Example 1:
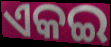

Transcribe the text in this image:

ଏକଇ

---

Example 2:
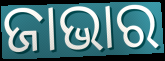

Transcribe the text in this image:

ଜାଭାର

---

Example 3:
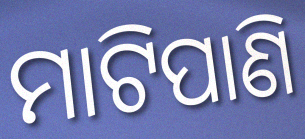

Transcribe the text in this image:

ମାଟିପାଣି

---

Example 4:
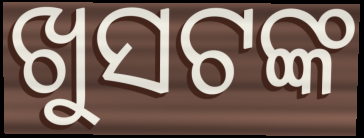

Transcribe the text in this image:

ଖୁସଟଙ୍କ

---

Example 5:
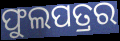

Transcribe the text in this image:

ଫୁଲପତ୍ରର